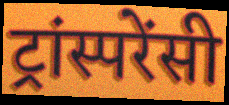
ट्रांस्परेंसी